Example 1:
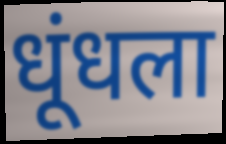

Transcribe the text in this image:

धूंधला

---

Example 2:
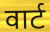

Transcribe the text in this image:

वार्ट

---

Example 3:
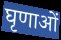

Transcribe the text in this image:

घृणाओं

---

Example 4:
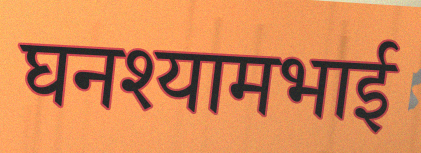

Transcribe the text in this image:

घनश्यामभाई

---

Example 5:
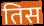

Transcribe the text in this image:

तिस